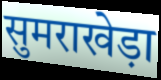
सुमराखेड़ा